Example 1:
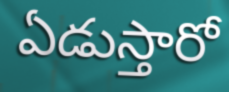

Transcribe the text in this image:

ఏడుస్తారో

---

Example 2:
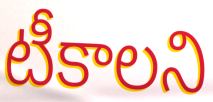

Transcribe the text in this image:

టీకాలని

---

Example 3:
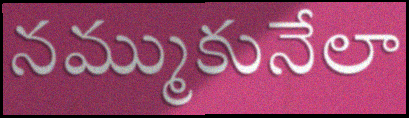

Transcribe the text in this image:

నమ్ముకునేలా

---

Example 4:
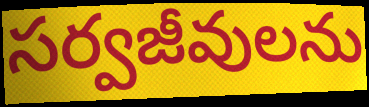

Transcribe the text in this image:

సర్వజీవులను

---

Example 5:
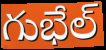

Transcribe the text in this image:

గుభేల్